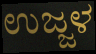
ಉಜ್ಜಳ